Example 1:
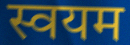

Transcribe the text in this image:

स्वयम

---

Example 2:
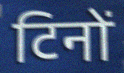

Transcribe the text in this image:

टिनों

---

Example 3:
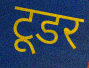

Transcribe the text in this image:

टूडर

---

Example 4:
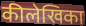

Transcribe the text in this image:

कीलेखिका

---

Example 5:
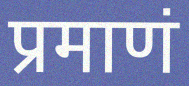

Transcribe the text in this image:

प्रमाणं